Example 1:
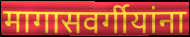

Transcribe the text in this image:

मागासवर्गीयांना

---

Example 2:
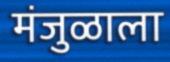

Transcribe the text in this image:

मंजुळाला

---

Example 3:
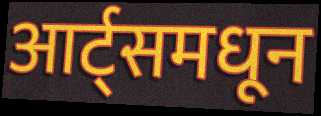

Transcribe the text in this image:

आर्ट्समधून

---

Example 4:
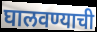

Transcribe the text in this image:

घालवण्याची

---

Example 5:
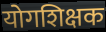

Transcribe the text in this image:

योगशिक्षक